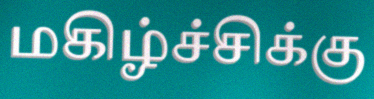
மகிழ்ச்சிக்கு